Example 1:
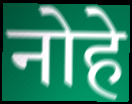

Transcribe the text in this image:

नोहे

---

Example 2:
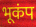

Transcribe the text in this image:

भूकंप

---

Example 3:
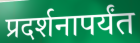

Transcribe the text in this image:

प्रदर्शनापर्यंत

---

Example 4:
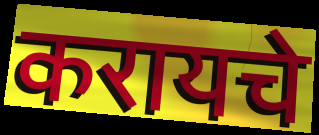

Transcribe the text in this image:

करायचे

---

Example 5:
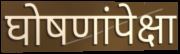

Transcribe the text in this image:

घोषणांपेक्षा